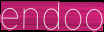
endoo